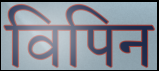
विपिन